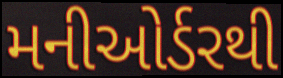
મનીઓર્ડરથી